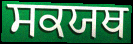
ਸਕਯਥ